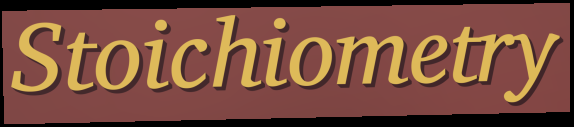
Stoichiometry